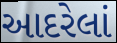
આદરેલાં